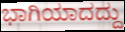
ಭಾಗಿಯಾದದ್ದು